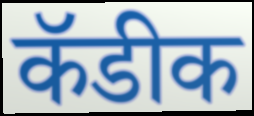
कॅडीक